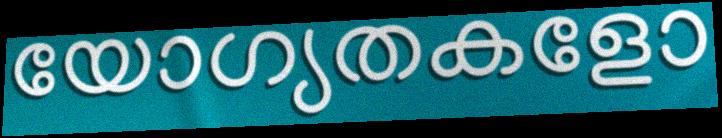
യോഗ്യതകളോ